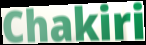
Chakiri